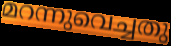
മറന്നുവെച്ചതു